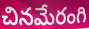
చినమేరంగి